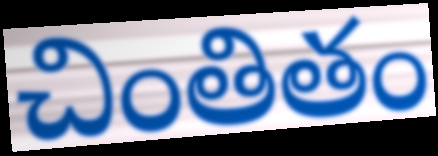
చింతితం